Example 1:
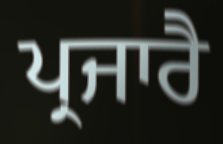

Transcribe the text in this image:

ਪ੍ਰਜਾਰੈ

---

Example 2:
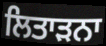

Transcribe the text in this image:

ਲਿਤਾੜਨਾ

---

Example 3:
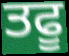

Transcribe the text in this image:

ਤਫੂ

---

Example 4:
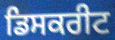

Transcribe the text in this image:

ਡਿਸਕਰੀਟ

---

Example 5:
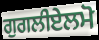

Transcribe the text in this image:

ਗੁਗਲੀਏਲਮੋ